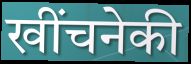
खींचनेकी